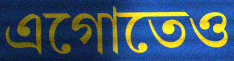
এগোতেও